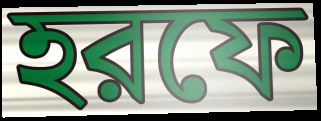
হরফে